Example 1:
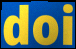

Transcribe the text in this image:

doi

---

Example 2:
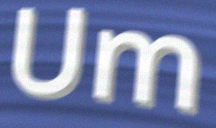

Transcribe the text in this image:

Um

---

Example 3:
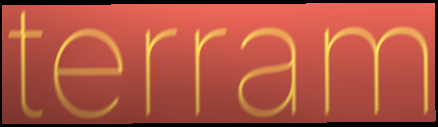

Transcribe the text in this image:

terram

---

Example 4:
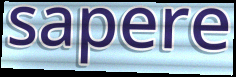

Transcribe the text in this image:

sapere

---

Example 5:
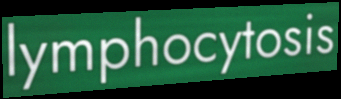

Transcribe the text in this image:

lymphocytosis